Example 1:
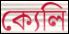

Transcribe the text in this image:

ক্যেলি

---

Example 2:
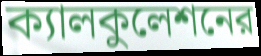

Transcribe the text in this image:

ক্যালকুলেশনের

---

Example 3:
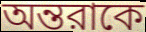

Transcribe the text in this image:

অন্তরাকে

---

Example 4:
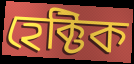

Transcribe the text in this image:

হেক্টিক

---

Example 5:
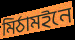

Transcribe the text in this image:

মিঠামইনে